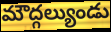
మౌద్గల్యుండు